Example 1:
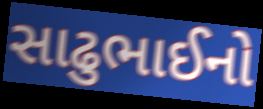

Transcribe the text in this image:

સાઢુભાઈનો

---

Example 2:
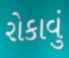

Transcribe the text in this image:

રોકાવું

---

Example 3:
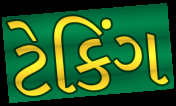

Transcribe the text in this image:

ટેકિંગ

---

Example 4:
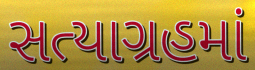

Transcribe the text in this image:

સત્યાગ્રહમાં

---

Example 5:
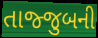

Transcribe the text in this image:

તાજ્જુબની